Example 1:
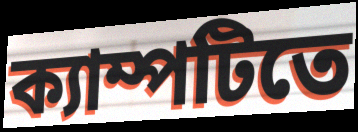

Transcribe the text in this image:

ক্যাম্পটিতে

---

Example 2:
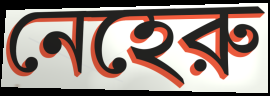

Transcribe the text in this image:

নেহেরু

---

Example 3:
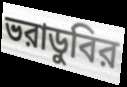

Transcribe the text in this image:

ভরাডুবির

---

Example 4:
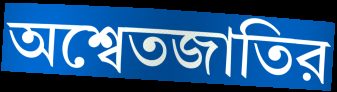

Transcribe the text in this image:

অশ্বেতজাতির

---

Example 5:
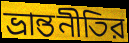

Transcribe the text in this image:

ভ্রান্তনীতির